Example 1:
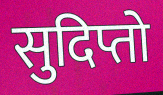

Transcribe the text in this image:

सुदिप्तो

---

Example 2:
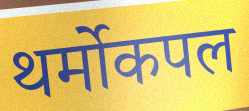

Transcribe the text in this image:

थर्मोकपल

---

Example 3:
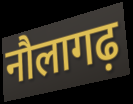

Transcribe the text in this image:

नौलागढ़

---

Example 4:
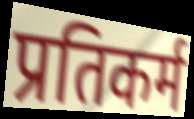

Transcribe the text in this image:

प्रतिकर्म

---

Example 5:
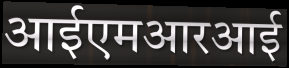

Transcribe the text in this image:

आईएमआरआई